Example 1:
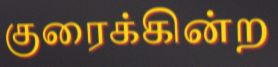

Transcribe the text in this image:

குரைக்கின்ற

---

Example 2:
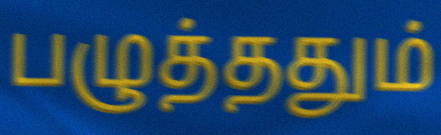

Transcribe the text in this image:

பழுத்ததும்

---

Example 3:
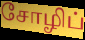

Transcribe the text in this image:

சோழிப்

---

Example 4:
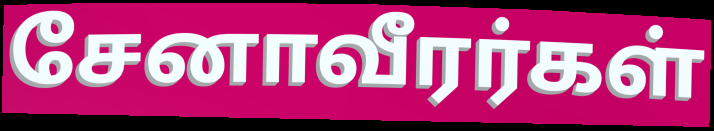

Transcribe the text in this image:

சேனாவீரர்கள்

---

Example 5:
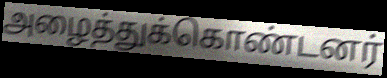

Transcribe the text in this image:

அழைத்துக்கொண்டனர்